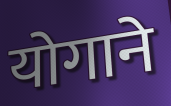
योगाने